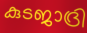
കുടജാദ്രി